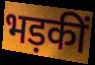
भड़कीं